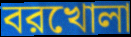
বরখোলা